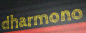
dharmono